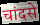
चांदसे